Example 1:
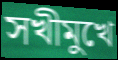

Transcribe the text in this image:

সখীমুখে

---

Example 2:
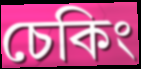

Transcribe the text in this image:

চেকিং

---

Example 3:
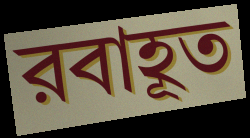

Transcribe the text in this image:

রবাহূত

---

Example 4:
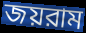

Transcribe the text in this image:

জয়রাম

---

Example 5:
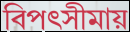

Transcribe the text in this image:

বিপৎসীমায়